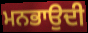
ਮਨਭਾਉਦੀ